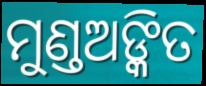
ମୁଣ୍ଡଅଙ୍କିତ